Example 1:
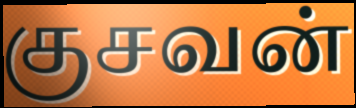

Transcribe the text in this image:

குசவன்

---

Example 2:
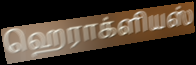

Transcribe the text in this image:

ஹெராக்ளியஸ்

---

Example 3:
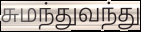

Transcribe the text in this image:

சுமந்துவந்து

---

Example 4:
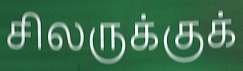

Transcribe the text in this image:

சிலருக்குக்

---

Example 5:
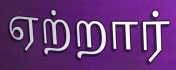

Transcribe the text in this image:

ஏற்றார்